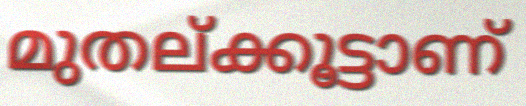
മുതല്ക്കൂട്ടാണ്